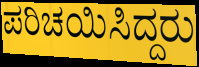
ಪರಿಚಯಿಸಿದ್ದರು